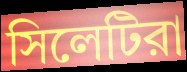
সিলেটিরা